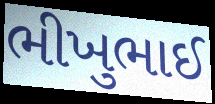
ભીખુભાઈ